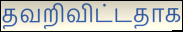
தவறிவிட்டதாக